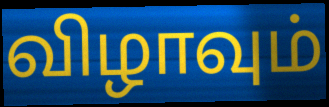
விழாவும்